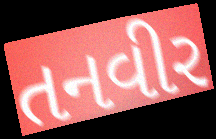
તનવીર